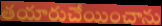
తయారుచేయించాను